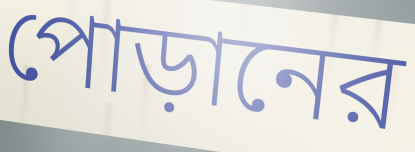
পোড়ানের